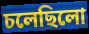
চলেছিলো